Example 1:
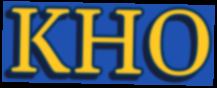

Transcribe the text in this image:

KHO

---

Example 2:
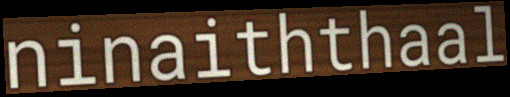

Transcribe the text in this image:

ninaiththaal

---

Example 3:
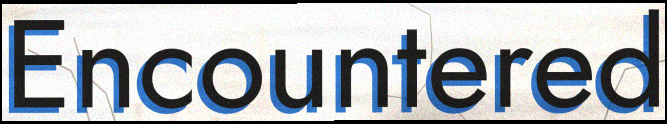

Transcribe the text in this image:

Encountered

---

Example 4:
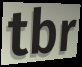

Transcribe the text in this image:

tbr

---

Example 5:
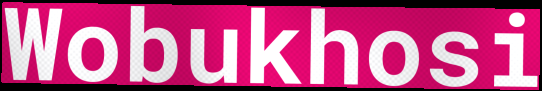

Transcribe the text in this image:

Wobukhosi